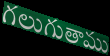
గలుగుతాము